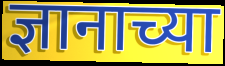
ज्ञानाच्या